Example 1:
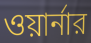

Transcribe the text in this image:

ওয়ার্নার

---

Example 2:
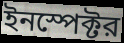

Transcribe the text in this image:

ইনস্পেক্টর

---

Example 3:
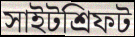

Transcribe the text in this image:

সাইটশ্রিফট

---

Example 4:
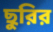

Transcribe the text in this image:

ছুরির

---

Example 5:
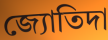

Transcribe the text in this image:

জ্যোতিদা